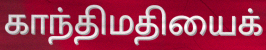
காந்திமதியைக்